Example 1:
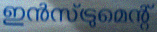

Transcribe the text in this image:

ഇൻസ്ട്രുമെന്റ്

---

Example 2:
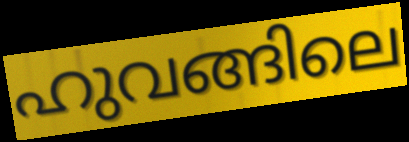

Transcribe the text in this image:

ഹുവങ്ങിലെ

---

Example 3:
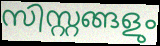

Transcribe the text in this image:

സിസ്റ്റങ്ങളും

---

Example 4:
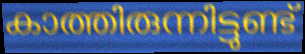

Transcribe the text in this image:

കാത്തിരുന്നിട്ടുണ്ട്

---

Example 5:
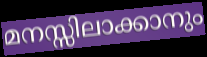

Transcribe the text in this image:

മനസ്സിലാക്കാനും